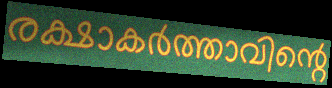
രക്ഷാകർത്താവിന്റെ